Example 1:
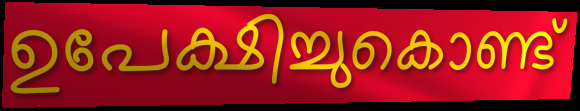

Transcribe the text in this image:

ഉപേക്ഷിച്ചുകൊണ്ട്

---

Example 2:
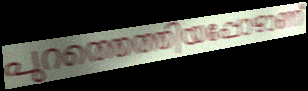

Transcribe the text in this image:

പുറത്തെത്തിയപ്പോഴാണ്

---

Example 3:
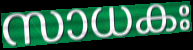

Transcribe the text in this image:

സാധകഃ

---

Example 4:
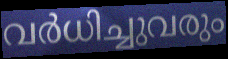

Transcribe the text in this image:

വർധിച്ചുവരും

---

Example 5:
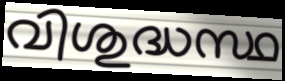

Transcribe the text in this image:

വിശുദ്ധസ്ഥ